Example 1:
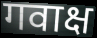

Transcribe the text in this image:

गवाक्ष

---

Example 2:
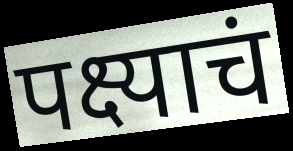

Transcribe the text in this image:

पक्ष्याचं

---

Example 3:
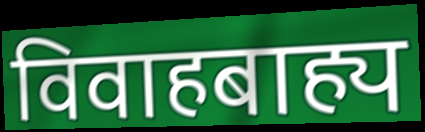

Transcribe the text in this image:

विवाहबाह्य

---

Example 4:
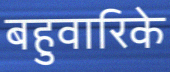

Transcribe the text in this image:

बहुवारिके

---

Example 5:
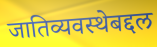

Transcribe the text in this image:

जातिव्यवस्थेबद्दल